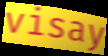
visay